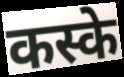
कस्के